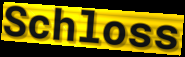
Schloss